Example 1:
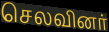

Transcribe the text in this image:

செலவினர்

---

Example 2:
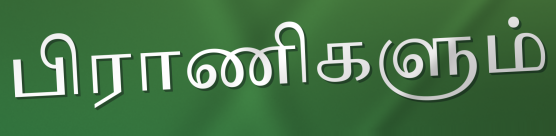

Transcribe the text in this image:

பிராணிகளும்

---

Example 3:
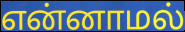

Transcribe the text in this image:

என்னாமல்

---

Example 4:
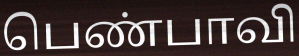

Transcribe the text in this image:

பெண்பாவி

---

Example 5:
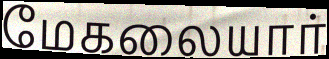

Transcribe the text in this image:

மேகலையார்